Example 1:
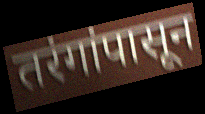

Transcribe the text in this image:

तरंगांपासून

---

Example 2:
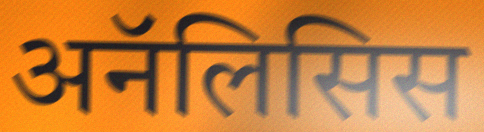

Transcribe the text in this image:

अनॅलिसिस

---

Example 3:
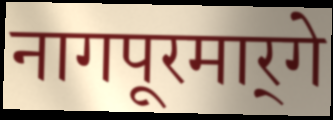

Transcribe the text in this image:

नागपूरमार्गे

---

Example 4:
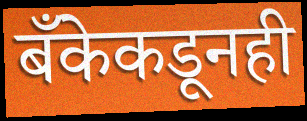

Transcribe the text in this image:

बँकेकडूनही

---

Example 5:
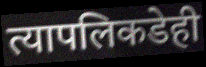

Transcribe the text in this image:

त्यापलिकडेही